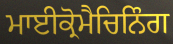
ਮਾਈਕ੍ਰੋਮੈਚਿਨਿੰਗ